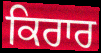
ਕਿਰਾਰ